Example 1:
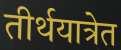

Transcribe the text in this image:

तीर्थयात्रेत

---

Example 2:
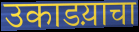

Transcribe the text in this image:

उकाडय़ाचा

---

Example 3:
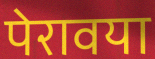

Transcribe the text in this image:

पेरावया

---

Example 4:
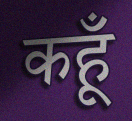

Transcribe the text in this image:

कहूँ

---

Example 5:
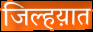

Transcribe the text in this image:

जिल्हय़ात